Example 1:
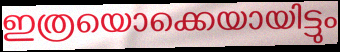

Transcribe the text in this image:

ഇത്രയൊക്കെയായിട്ടും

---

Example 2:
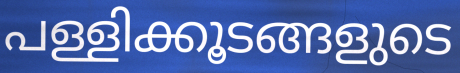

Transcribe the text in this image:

പള്ളിക്കൂടങ്ങളുടെ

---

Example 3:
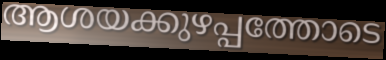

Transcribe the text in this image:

ആശയക്കുഴപ്പത്തോടെ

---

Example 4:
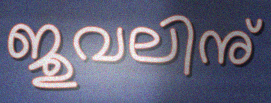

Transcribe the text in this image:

ജുവലിനു്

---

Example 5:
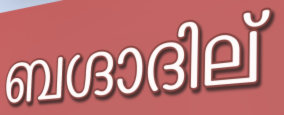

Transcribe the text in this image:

ബഗ്ദാദില്